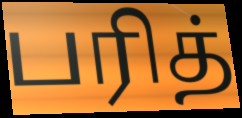
பரித்